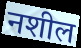
नशील